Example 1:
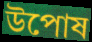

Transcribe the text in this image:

উপোষ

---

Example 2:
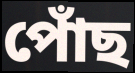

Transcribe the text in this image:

পোঁছ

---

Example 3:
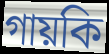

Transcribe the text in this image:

গায়কি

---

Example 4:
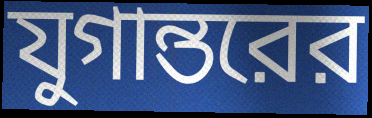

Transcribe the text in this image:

যুগান্তরের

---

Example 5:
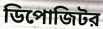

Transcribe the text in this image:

ডিপোজিটর